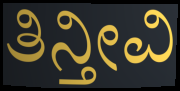
ತಿನ್ತೀವಿ